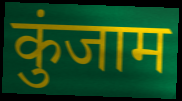
कुंजाम